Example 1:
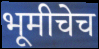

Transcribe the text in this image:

भूमीचेच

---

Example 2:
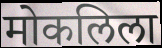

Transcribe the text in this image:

मोकलिला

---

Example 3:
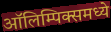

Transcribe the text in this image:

ऑलिम्पिक्समध्ये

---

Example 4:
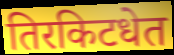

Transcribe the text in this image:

तिरकिटधेत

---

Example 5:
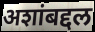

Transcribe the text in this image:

अशांबद्दल